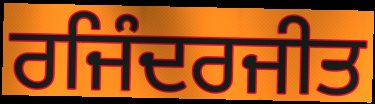
ਰਜਿੰਦਰਜੀਤ